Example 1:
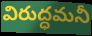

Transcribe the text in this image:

విరుద్ధమనీ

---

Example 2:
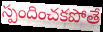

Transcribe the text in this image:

స్పందించకపోతే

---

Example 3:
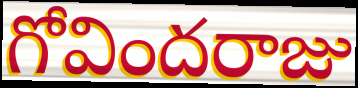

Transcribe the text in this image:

గోవిందరాజు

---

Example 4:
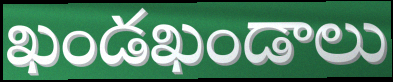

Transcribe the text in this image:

ఖండఖండాలు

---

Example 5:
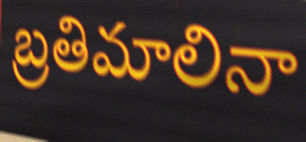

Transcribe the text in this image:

బ్రతిమాలినా